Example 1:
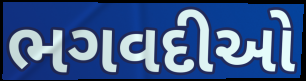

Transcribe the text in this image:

ભગવદીઓ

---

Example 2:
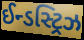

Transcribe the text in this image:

ઈન્ડસ્ટ્રિઝ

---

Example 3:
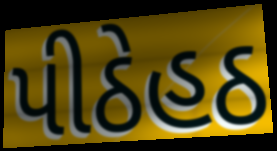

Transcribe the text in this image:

પીઠેહઠ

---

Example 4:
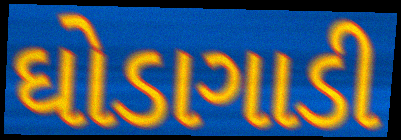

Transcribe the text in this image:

ઘોડાગાડી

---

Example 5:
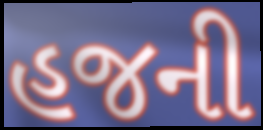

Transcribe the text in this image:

હજની